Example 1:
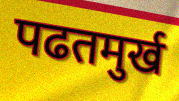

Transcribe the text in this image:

पढतमुर्ख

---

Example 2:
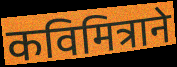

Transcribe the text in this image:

कविमित्राने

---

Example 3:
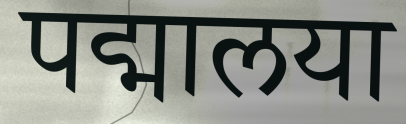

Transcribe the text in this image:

पद्मालया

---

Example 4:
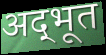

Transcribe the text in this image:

अद्‌भूत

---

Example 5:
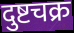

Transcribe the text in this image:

दुष्टचक्र